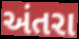
અંતરા